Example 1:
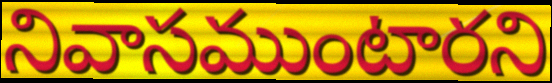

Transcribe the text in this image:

నివాసముంటారని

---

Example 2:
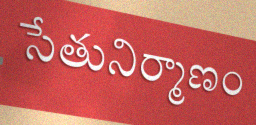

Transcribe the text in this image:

సేతునిర్మాణం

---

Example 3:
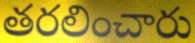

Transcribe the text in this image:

తరలించారు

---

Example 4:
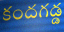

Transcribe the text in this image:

కందగడ్డ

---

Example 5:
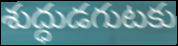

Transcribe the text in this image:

శుద్ధుడగుటకు